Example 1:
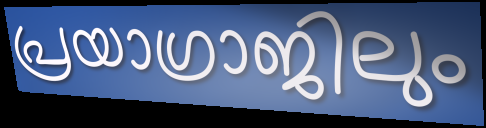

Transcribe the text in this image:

പ്രയാഗ്രാജിലും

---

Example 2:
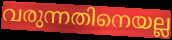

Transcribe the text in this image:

വരുന്നതിനെയല്ല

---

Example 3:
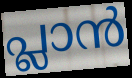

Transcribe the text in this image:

പ്ലാൻ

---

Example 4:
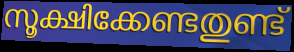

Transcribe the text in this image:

സൂക്ഷിക്കേണ്ടതുണ്ട്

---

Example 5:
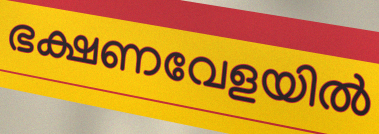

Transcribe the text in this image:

ഭക്ഷണവേളയിൽ